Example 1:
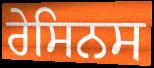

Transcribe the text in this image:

ਰੇਸਿਨਸ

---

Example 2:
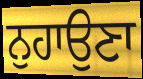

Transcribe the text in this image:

ਨੁਹਾਉਣਾ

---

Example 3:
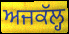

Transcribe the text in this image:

ਅਜਕੱਲ੍ਹ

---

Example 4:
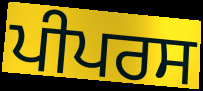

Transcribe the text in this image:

ਪੀਪਰਸ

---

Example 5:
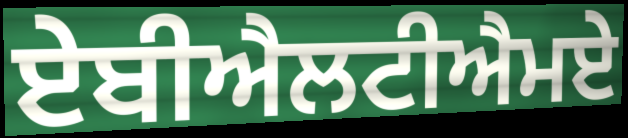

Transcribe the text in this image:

ਏਬੀਐਲਟੀਐਮਏ